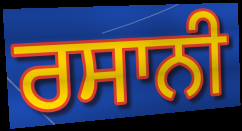
ਰਸਾਨੀ